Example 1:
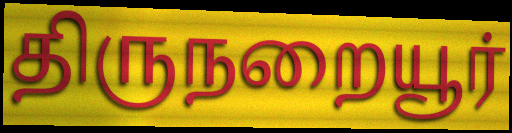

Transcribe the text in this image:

திருநறையூர்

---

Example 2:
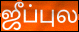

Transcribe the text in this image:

ஜீப்புல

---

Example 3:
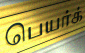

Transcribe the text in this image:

பெயர்க்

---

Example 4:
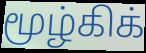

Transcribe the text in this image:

மூழ்கிக்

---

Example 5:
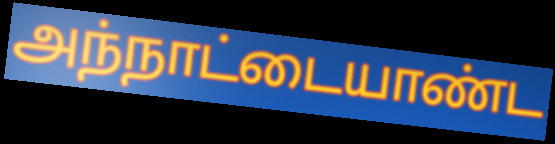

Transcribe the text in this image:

அந்நாட்டையாண்ட